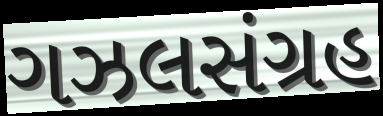
ગઝલસંગ્રહ